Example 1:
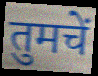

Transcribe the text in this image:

तुमचें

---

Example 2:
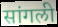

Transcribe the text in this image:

सांगली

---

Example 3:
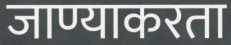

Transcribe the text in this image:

जाण्याकरता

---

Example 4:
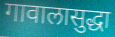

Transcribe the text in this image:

गावालासुद्धा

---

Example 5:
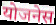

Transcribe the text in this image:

योजनेस